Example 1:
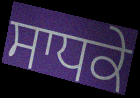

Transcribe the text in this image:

ਸਾਧਕੇ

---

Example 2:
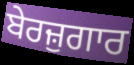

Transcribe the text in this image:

ਬੇਰਜ਼ੁਗਾਰ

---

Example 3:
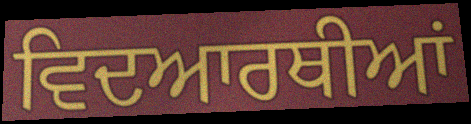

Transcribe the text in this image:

ਵਿਦਆਰਥੀਆਂ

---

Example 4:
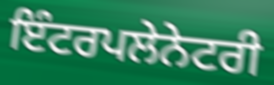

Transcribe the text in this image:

ਇੰਟਰਪਲੇਨੇਟਰੀ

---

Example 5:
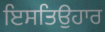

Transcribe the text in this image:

ਇਸਤਿਉਹਾਰ